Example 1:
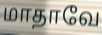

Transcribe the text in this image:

மாதாவே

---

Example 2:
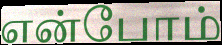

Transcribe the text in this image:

என்போம்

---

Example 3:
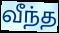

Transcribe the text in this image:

வீந்த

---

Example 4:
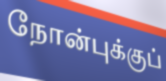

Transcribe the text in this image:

நோன்புக்குப்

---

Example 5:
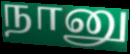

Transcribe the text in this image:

நானு